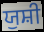
ਯੁਸ਼ੀ